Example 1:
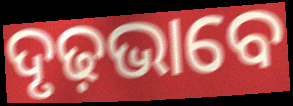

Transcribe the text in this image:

ଦୃଢ଼ଭାବେ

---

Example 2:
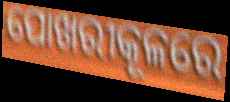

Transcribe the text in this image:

ପୋଖରୀକୂଳରେ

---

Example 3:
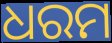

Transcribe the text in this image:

ଧରମ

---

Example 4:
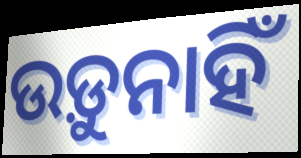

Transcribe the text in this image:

ଉଡ଼ୁନାହିଁ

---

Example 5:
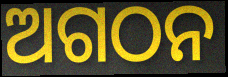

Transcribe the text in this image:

ଅଗଠନ